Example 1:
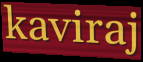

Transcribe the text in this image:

kaviraj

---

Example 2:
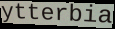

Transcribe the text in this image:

ytterbia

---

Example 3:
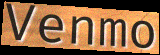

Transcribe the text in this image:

Venmo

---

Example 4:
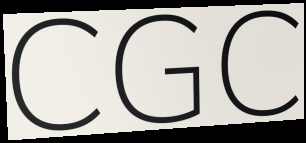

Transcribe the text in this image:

CGC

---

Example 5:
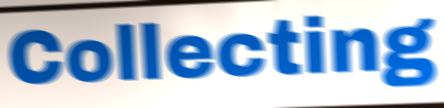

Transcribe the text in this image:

Collecting